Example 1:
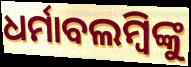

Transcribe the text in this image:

ଧର୍ମାବଲମ୍ବିଙ୍କୁ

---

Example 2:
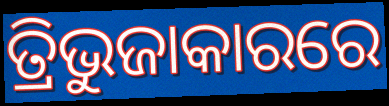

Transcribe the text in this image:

ତ୍ରିଭୁଜାକାରରେ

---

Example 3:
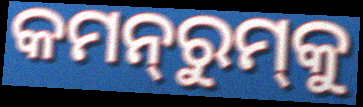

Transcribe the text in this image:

କମନ୍‍ରୁମ୍‍କୁ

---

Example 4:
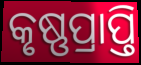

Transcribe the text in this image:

କୃଷ୍ଣପ୍ରାପ୍ତି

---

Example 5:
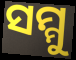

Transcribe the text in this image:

ସମ୍ମୁ